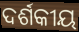
ଦର୍ଶକୀୟ